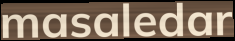
masaledar